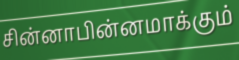
சின்னாபின்னமாக்கும்